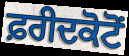
ਫ਼ਰੀਦਕੋਟੋਂ